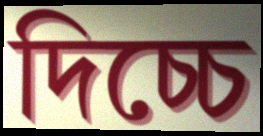
দিচ্চে